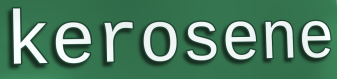
kerosene